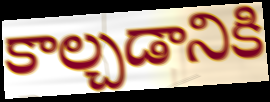
కాల్చడానికి